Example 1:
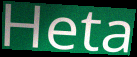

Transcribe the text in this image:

Heta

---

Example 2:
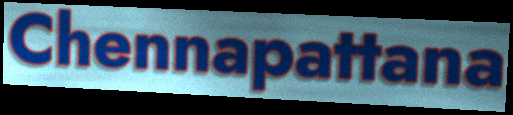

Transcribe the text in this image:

Chennapattana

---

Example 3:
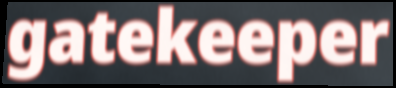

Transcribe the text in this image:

gatekeeper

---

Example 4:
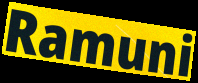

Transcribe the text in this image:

Ramuni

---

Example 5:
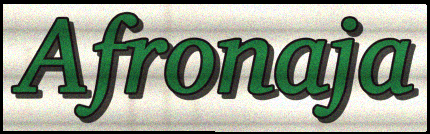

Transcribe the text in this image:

Afronaja